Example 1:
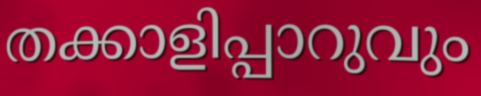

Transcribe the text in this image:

തക്കാളിപ്പാറുവും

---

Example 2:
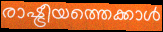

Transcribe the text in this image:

രാഷ്ട്രീയത്തെക്കാൾ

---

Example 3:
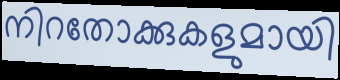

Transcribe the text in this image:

നിറതോക്കുകളുമായി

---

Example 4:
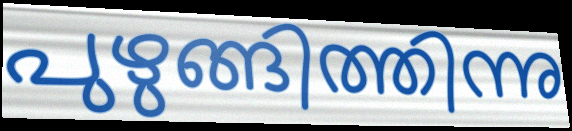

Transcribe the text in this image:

പുഴുങ്ങിത്തിന്നു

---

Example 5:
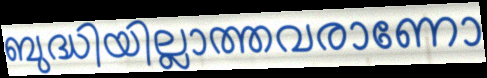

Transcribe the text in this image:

ബുദ്ധിയില്ലാത്തവരാണോ